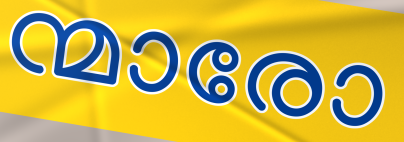
ന്മാരോ